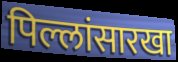
पिल्लांसारखा